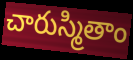
చారుస్మితాం